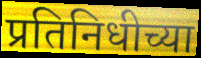
प्रतिनिधीच्या